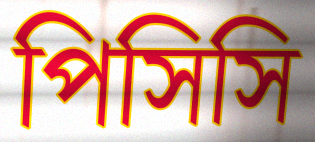
পিসিসি